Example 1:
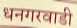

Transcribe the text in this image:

धनगरवाडी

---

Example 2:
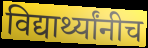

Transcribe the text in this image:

विद्यार्थ्यांनीच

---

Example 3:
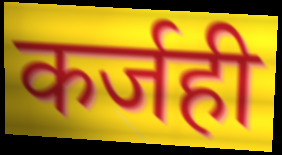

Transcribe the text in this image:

कर्जही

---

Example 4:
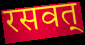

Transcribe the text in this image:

रसवत्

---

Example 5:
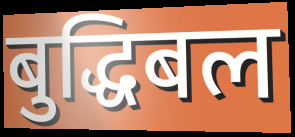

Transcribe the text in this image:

बुद्धिबल